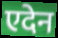
एदेन